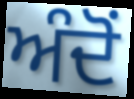
ਅੰਦੋਂ